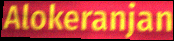
Alokeranjan